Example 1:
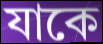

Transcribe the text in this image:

যাকে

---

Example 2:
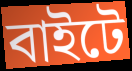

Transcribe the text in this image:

বাইটে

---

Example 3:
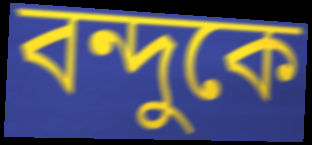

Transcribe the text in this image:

বন্দুকে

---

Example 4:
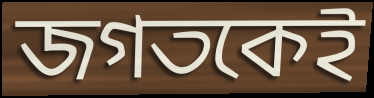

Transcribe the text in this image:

জগতকেই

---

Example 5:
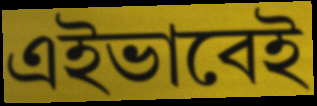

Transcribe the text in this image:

এইভাবেই